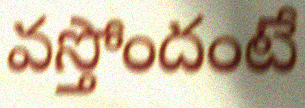
వస్తోందంటే